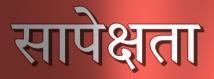
सापेक्षता